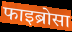
फाइब्रोसा